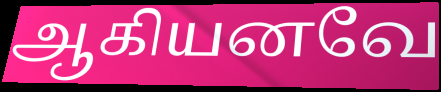
ஆகியனவே